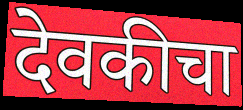
देवकीचा